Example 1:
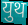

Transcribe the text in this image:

युथ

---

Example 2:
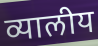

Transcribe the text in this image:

व्यालीय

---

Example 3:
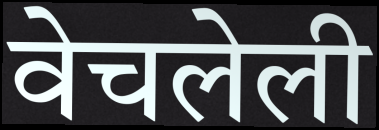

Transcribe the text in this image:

वेचलेली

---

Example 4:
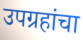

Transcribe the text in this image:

उपग्रहांचा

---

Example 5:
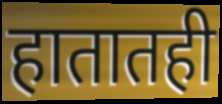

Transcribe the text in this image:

हातातही